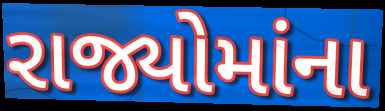
રાજ્યોમાંના